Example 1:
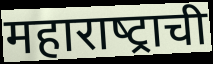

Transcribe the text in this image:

महाराष्ट्राची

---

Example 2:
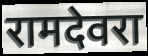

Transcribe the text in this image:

रामदेवरा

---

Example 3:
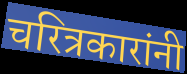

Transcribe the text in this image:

चरित्रकारांनी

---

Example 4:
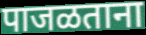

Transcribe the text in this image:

पाजळताना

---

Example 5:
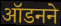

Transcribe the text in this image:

ऑडनने